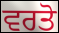
ਵਰਤੋ